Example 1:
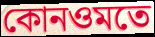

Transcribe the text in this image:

কোনওমতে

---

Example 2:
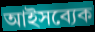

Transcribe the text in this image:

আইসব্যেক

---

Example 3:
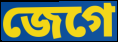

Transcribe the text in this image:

জেগে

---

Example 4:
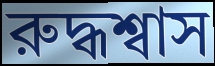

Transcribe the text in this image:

রুদ্ধশ্বাস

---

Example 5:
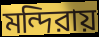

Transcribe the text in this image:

মন্দিরায়